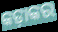
କଡ଼ାକର